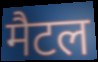
मैटल